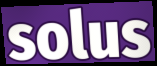
solus